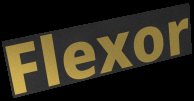
Flexor